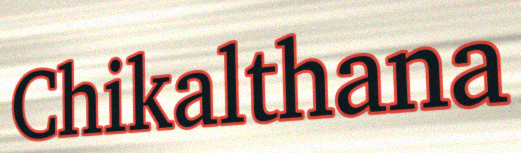
Chikalthana